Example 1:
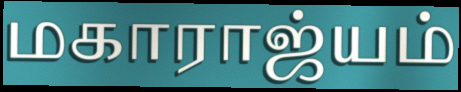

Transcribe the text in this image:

மகாராஜ்யம்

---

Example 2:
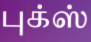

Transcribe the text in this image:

புக்ஸ்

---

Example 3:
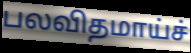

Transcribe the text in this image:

பலவிதமாய்ச்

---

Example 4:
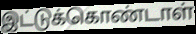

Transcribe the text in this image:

இட்டுக்கொண்டாள்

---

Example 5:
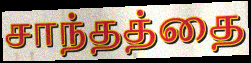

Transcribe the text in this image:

சாந்தத்தை